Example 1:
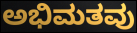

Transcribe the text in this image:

ಅಭಿಮತವು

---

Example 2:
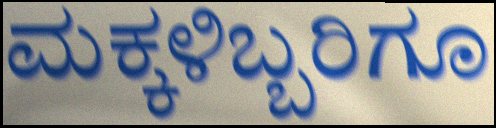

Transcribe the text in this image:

ಮಕ್ಕಳಿಬ್ಬರಿಗೂ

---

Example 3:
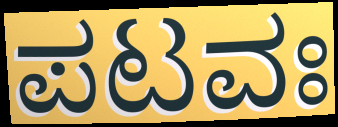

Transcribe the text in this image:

ಪಟವಃ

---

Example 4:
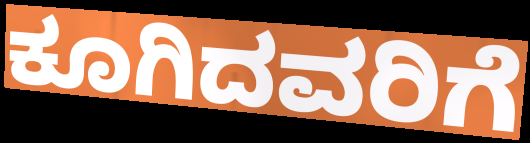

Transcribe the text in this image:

ಕೂಗಿದವರಿಗೆ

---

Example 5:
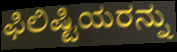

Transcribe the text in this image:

ಫಿಲಿಷ್ಟಿಯರನ್ನು